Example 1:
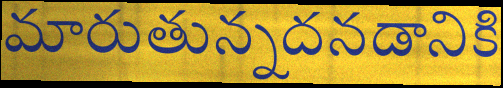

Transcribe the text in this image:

మారుతున్నదనడానికి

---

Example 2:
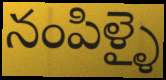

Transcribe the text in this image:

నంపిళ్ళై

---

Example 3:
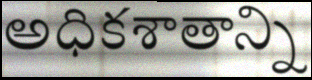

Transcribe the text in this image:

అధికశాతాన్ని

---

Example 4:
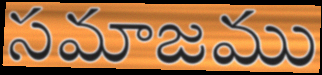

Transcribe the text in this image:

సమాజము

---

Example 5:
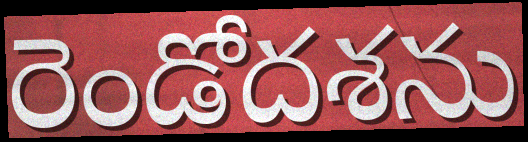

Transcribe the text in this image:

రెండోదశను